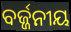
ବର୍ଜ୍ଜନୀୟ